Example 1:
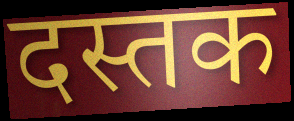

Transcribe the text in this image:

दस्तक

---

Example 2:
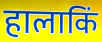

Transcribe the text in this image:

हालाकिं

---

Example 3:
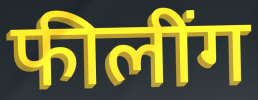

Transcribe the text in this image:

फीलींग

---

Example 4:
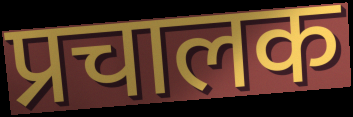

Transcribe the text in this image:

प्रचालक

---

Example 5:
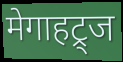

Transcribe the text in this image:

मेगाहट्र्ज